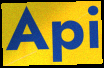
Api